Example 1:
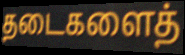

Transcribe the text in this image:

தடைகளைத்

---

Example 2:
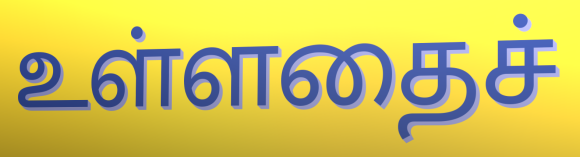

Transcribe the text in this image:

உள்ளதைச்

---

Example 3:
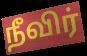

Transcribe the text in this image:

நீவிர்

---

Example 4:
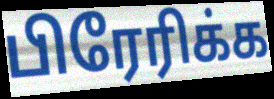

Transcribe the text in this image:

பிரேரிக்க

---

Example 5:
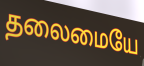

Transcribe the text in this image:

தலைமையே